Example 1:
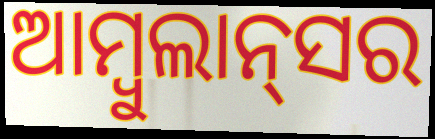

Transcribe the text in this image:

ଆମ୍ବୁଲାନ୍‌ସର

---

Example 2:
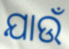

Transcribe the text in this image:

ଯାଉଁ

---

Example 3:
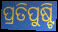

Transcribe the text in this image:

ପ୍ରତିପୁଷ୍ଟି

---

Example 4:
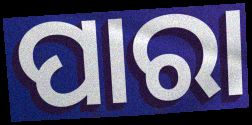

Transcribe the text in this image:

ପାରା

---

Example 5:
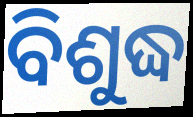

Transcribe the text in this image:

ବିଶୁଦ୍ଧ